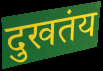
दुखतंय